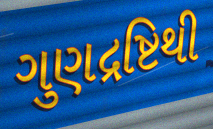
ગુણદ્રષ્ટિથી